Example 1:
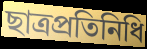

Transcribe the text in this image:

ছাত্রপ্রতিনিধি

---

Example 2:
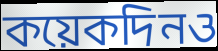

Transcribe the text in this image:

কয়েকদিনও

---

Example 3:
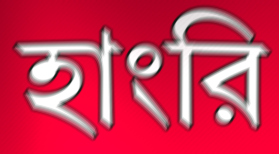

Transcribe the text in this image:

হাংরি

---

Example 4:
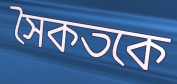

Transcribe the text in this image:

সৈকতকে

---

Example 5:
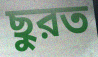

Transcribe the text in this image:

ছুরত